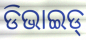
ଡିଭାଇଡ୍